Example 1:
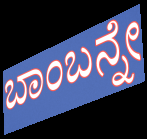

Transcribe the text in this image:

ಬಾಂಬನ್ನೇ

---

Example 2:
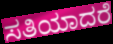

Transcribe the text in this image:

ಸತಿಯಾದರೆ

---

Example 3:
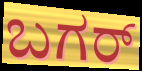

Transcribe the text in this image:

ಬಗರ್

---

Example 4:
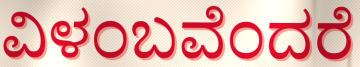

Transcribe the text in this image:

ವಿಳಂಬವೆಂದರೆ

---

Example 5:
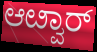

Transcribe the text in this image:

ಆೞ್ವಾರ್